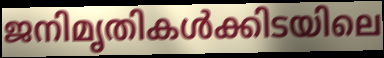
ജനിമൃതികൾക്കിടയിലെ